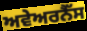
ਅਵੇਅਰਨੈੱਸ